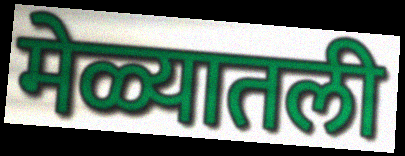
मेळ्यातली